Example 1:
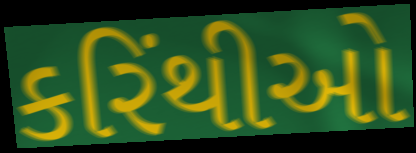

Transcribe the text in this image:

કરિંથીઓ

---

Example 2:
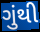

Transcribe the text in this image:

ગુંથી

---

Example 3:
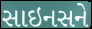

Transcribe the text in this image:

સાઇનસને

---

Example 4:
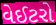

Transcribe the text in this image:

વેઈટરો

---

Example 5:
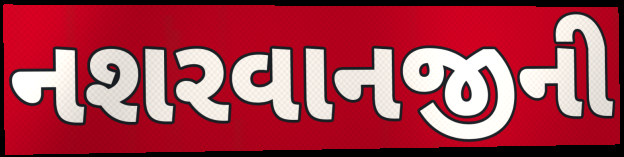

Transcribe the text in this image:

નશરવાનજીની